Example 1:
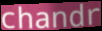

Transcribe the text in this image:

chandr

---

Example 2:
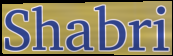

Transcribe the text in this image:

Shabri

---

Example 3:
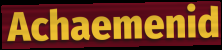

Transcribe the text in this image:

Achaemenid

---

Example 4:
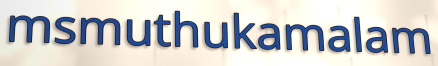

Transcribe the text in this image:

msmuthukamalam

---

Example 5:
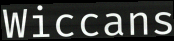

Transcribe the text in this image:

Wiccans